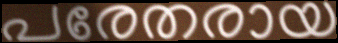
പരേതരായ